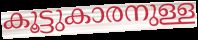
കൂട്ടുകാരനുള്ള